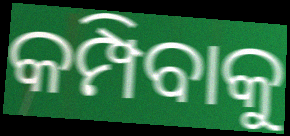
କମ୍ପିବାକୁ